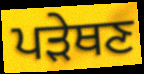
ਪੜੇਥਣ